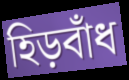
হিড়বাঁধ